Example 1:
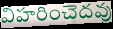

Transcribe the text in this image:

విహరించెదవు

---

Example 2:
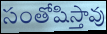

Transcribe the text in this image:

సంతోషిస్తావు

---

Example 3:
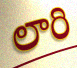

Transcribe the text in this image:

లారి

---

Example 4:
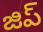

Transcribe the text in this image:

జిప్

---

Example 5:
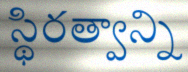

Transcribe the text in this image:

స్థిరత్వాన్ని